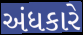
અંધકારે